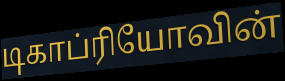
டிகாப்ரியோவின்